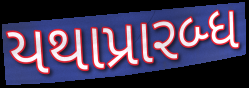
યથાપ્રારબ્ધ